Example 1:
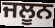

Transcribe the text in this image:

ਜਲੂਨ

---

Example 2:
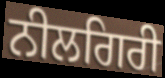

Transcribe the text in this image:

ਨੀਲਗਿਰੀ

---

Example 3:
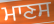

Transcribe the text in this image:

ਮਾਣਸ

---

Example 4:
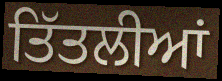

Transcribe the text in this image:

ਤਿੱਤਲੀਆਂ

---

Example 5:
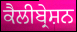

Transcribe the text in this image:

ਕੈਲੀਬ੍ਰੇਸ਼ਨ